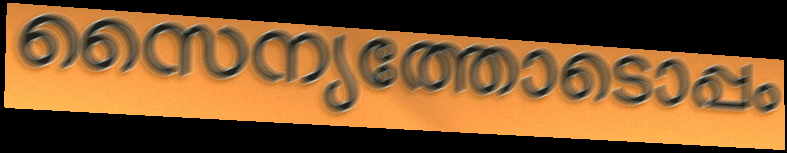
സൈന്യത്തോടൊപ്പം